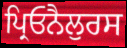
ਪ੍ਰਿਓਨੈਲੁਰਸ